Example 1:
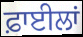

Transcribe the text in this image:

ਫ਼ਾਈਲਾਂ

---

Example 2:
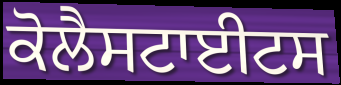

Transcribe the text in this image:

ਕੋਲੈਸਟਾਈਟਸ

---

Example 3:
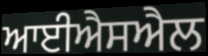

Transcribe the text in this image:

ਆਈਐਸਐਲ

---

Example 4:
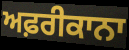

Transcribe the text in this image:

ਅਫ਼ਰੀਕਾਨਾ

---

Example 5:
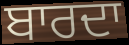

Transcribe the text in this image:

ਬਾਰਦਾ